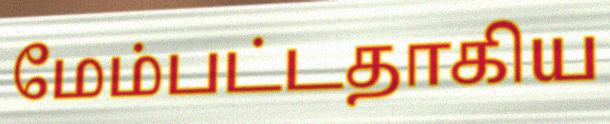
மேம்பட்டதாகிய